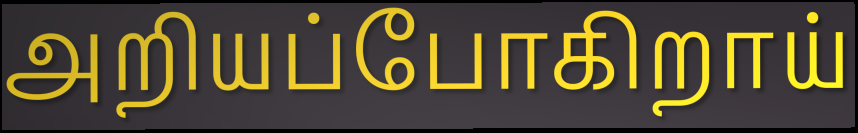
அறியப்போகிறாய்